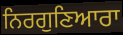
ਨਿਰਗੁਣਿਆਰਾ